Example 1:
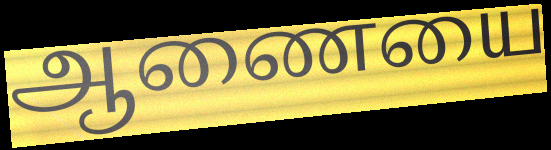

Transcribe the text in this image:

ஆணையை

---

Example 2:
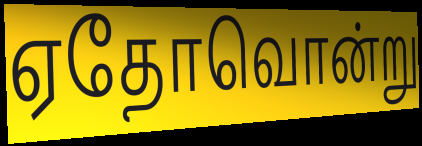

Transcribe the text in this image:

ஏதோவொன்று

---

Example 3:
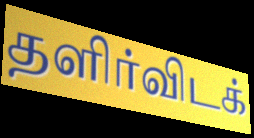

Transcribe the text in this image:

தளிர்விடக்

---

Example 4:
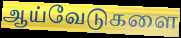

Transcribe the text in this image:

ஆய்வேடுகளை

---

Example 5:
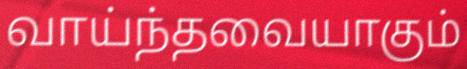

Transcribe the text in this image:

வாய்ந்தவையாகும்